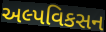
અલ્પવિકસન